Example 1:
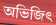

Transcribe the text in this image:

অভিজিৎ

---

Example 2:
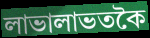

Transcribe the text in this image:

লাভালাভতকৈ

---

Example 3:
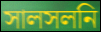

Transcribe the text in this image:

সালসলনি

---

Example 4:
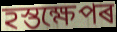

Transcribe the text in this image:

হস্তক্ষেপৰ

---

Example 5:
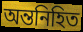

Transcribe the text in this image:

অন্তনিহিত